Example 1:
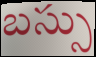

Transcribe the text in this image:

బస్సు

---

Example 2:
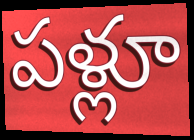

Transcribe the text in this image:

పళ్లూ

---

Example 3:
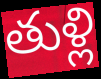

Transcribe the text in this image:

తుళ్లి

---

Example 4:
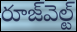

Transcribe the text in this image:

రూజ్‌వెల్ట్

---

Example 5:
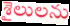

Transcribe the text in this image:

శైలులను